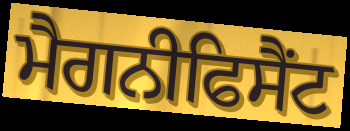
ਮੈਗਨੀਫਿਸੈਂਟ